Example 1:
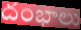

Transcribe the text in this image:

దంభాలు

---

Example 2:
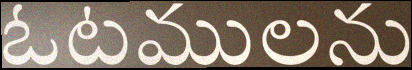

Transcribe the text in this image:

ఓటములను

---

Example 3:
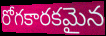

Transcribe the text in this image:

రోగకారకమైన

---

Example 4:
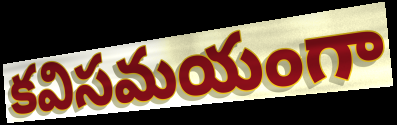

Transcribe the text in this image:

కవిసమయంగా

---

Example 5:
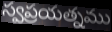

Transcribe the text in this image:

స్వప్రయత్నము